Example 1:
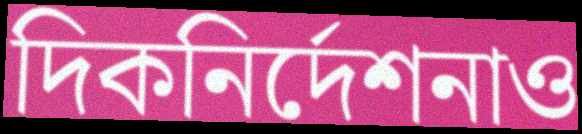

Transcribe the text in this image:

দিকনির্দেশনাও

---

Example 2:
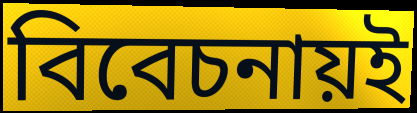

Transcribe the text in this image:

বিবেচনায়ই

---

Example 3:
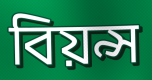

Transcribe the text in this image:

বিয়ন্স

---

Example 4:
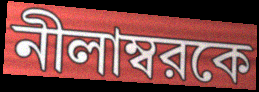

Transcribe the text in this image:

নীলাম্বরকে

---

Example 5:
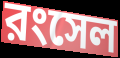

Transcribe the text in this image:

রংসেল